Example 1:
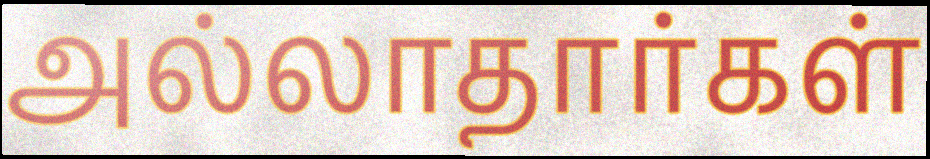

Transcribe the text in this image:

அல்லாதார்கள்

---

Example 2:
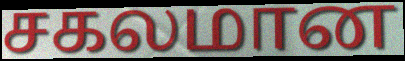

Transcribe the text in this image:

சகலமான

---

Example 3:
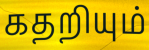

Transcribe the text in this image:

கதறியும்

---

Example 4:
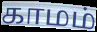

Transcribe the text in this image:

காமம்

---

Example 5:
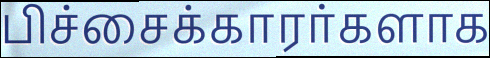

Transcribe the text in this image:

பிச்சைக்காரர்களாக